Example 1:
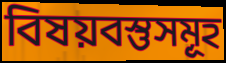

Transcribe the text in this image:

বিষয়বস্তুসমূহ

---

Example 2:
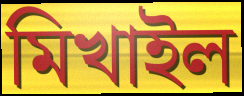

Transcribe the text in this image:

মিখাইল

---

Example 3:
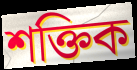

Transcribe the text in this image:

শক্তিক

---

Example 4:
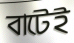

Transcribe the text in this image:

বাটেই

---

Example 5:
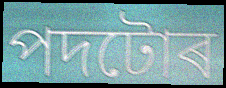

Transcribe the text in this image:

পদটোৰ